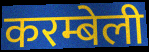
करम्बेली